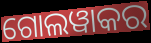
ଗୋଲୱାକର